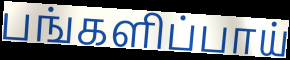
பங்களிப்பாய்